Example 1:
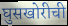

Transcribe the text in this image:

घुसखोरीची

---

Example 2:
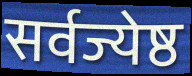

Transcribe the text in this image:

सर्वज्येष्ठ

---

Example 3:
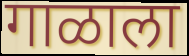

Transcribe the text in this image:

गाळाला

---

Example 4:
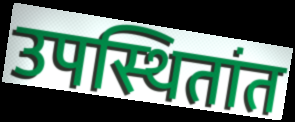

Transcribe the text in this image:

उपस्थितांत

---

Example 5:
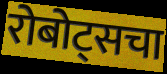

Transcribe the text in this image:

रोबोट्सचा